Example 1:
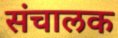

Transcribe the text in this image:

संचालक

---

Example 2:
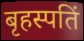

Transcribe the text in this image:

बृहस्पतिं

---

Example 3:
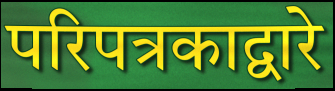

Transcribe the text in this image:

परिपत्रकाद्वारे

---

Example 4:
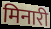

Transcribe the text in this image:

मिनारी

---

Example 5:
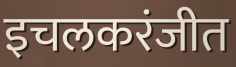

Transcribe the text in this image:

इचलकरंजीत